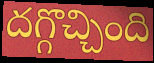
దగ్గొచ్చింది